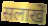
सलाखें